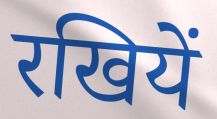
रखियें